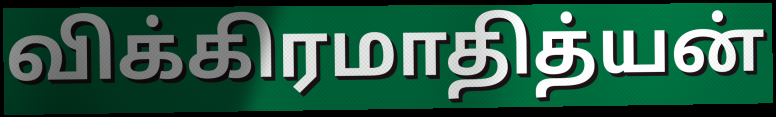
விக்கிரமாதித்யன்